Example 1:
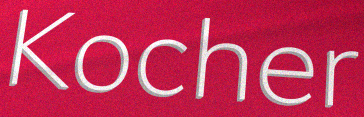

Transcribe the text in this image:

Kocher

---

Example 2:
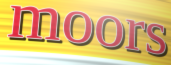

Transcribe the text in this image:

moors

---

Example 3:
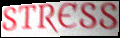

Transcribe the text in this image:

STRESS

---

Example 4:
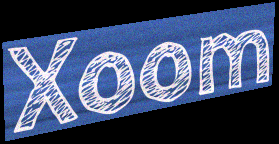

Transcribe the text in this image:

Xoom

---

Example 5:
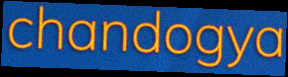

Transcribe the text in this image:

chandogya